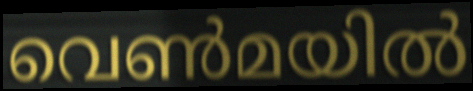
വെൺമയിൽ